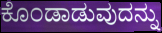
ಕೊಂಡಾಡುವುದನ್ನು